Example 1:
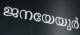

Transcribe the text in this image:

ജനയേയുർ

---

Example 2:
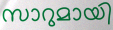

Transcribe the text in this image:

സാറുമായി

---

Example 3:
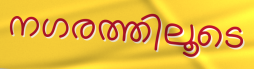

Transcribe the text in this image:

നഗരത്തിലൂടെ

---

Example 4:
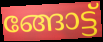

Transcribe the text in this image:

ങ്ങോട്ട്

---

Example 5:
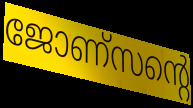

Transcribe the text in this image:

ജോണ്സന്റെ